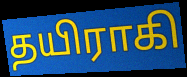
தயிராகி